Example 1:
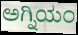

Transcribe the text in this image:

ಅಗ್ನಿಯಂ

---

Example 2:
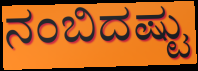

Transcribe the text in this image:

ನಂಬಿದಷ್ಟು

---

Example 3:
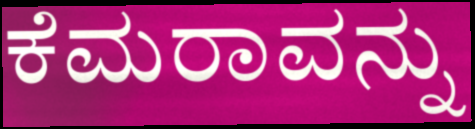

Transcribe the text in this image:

ಕೆಮರಾವನ್ನು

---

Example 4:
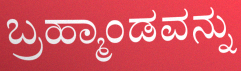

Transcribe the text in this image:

ಬ್ರಹ್ಮಾಂಡವನ್ನು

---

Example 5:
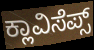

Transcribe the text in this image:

ಕ್ಲಾವಿಸೆಪ್ಸ್